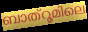
ബാത്റൂമിലെ